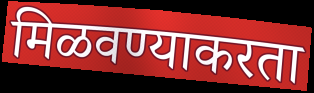
मिळवण्याकरता